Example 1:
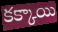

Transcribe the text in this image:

కక్కాయి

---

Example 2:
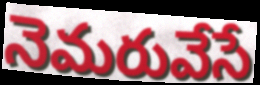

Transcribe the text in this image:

నెమరువేసే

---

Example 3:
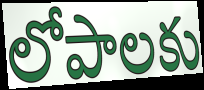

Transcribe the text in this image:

లోపాలకు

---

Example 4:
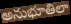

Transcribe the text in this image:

అనుభూతిలా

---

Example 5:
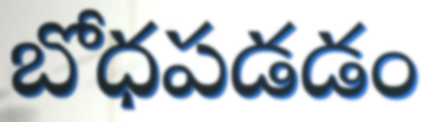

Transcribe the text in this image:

బోధపడడం